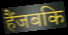
हैंजबकि